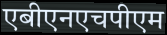
एबीएनएचपीएम